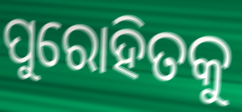
ପୁରୋହିତକୁ